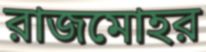
রাজমোহর